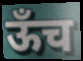
ऊँच